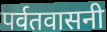
पर्वतवासनी